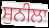
ਸੁਨੀਲਾ